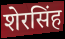
शेरसिंह